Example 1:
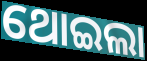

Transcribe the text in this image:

ଥୋଇଲା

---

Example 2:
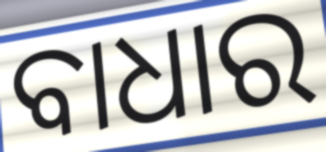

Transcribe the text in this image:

ବାଧାର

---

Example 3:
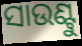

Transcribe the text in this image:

ସାଉଣ୍ଟୁ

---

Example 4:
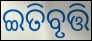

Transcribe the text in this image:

ଇତିବୃତ୍ତି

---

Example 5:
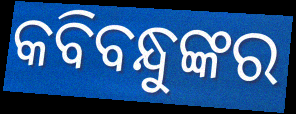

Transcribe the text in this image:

କବିବନ୍ଧୁଙ୍କର